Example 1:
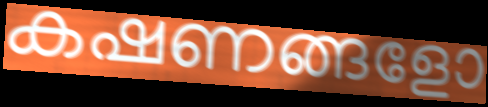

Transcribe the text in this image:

കഷണങ്ങളോ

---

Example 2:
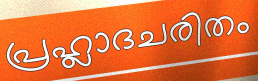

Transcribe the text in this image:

പ്രഹ്ലാദചരിതം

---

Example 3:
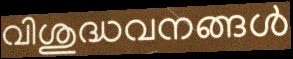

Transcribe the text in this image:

വിശുദ്ധവനങ്ങൾ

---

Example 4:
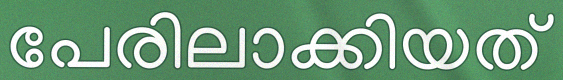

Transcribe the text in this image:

പേരിലാക്കിയത്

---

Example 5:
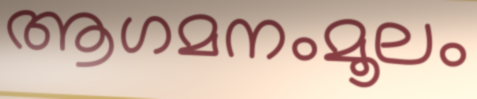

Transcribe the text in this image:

ആഗമനംമൂലം